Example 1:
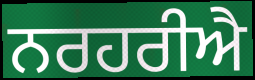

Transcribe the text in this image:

ਨਰਹਰੀਐ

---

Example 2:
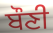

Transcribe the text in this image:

ਬੌਣੀ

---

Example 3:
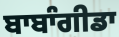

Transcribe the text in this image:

ਬਾਬਾੰਗੀਡਾ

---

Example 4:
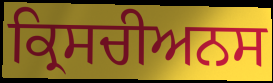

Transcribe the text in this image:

ਕ੍ਰਿਸਚੀਅਨਸ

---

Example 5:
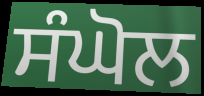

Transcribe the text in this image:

ਸੰਘੋਲ